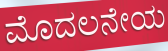
ಮೊದಲನೇಯ